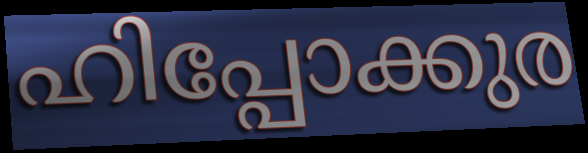
ഹിപ്പോക്കുര